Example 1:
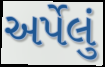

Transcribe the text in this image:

અર્પેલું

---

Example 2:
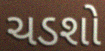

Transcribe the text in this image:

ચડશો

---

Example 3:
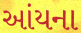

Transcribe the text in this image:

આંયના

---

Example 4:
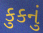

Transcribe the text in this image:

કુકનું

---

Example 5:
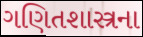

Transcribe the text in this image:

ગણિતશાસ્ત્રના